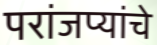
परांजप्यांचे